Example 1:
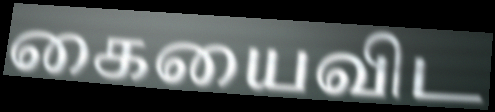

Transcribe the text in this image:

கையைவிட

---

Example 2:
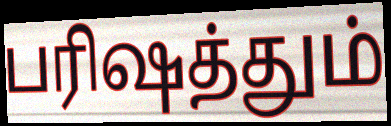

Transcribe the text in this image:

பரிஷத்தும்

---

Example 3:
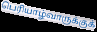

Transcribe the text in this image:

பெரியாழ்வாருக்குக்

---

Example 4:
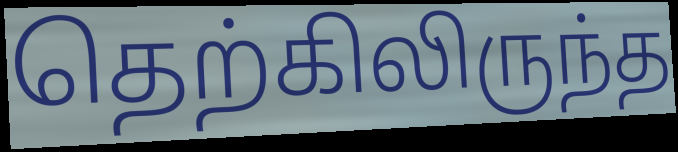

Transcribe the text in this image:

தெற்கிலிருந்த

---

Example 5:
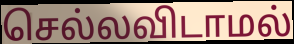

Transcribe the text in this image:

செல்லவிடாமல்